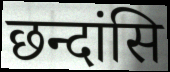
छन्दांसि